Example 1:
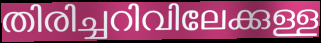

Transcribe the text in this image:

തിരിച്ചറിവിലേക്കുള്ള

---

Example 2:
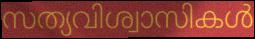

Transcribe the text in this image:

സത്യവിശ്വാസികൾ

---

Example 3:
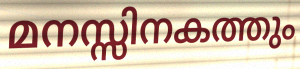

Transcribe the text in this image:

മനസ്സിനകത്തും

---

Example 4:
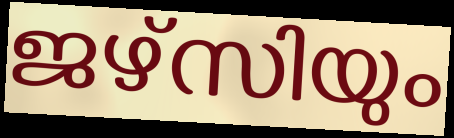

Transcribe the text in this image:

ജഴ്സിയും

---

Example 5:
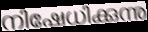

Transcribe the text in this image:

നിഷേധിക്കുന്നു